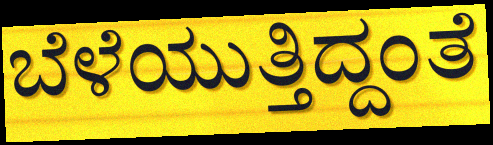
ಬೆಳೆಯುತ್ತಿದ್ದಂತೆ